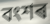
বংশৰ